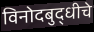
विनोदबुद्धीचे